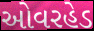
ઓવરહેડ